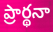
ప్రార్థనా